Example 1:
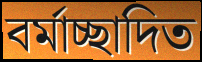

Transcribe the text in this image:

বর্মাচ্ছাদিত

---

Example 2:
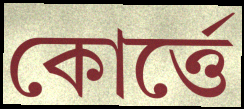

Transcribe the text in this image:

কোর্ত্তে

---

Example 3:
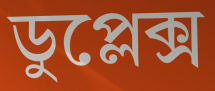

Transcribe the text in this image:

ডুপ্লেক্স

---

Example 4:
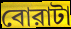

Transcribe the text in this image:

বোরাটা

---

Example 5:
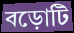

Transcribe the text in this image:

বড়োটি